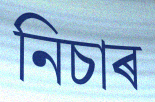
নিচাৰ